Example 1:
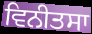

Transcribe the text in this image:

ਵਿਨੀਤਸਾ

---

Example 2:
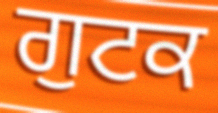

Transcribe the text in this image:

ਗੁਟਕ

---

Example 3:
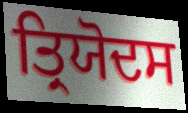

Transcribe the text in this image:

ਤ੍ਰਿਯੋਦਸ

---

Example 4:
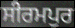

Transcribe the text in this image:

ਸੀਰਮਪੁਰ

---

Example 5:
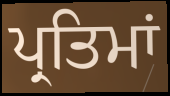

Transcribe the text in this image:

ਪ੍ਰਤਿਮਾਂ